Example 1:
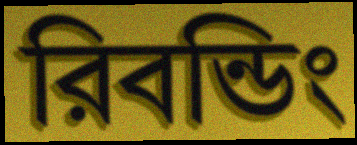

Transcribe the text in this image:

রিবন্ডিং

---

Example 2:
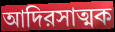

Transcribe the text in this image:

আদিরসাত্মক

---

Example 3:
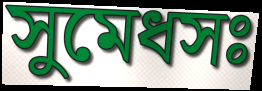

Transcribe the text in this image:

সুমেধসঃ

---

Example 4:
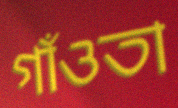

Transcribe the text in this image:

গাঁওতা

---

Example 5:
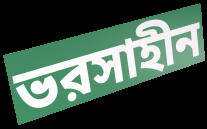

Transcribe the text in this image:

ভরসাহীন